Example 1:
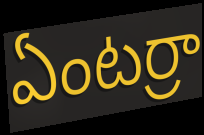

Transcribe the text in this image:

ఏంటర్రా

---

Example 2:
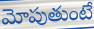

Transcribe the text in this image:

మోపుతుంటే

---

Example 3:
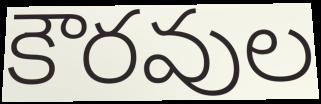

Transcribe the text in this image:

కౌరవుల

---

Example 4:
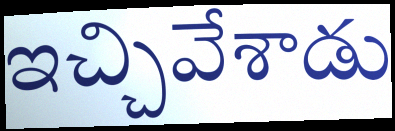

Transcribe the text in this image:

ఇచ్చివేశాడు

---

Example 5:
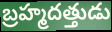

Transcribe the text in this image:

బ్రహ్మదత్తుడు